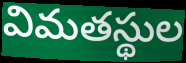
విమతస్థుల